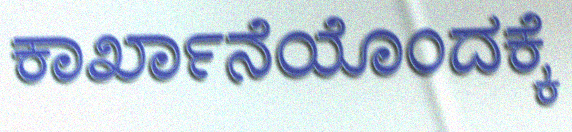
ಕಾರ್ಖಾನೆಯೊಂದಕ್ಕೆ